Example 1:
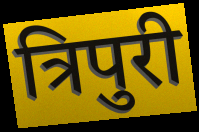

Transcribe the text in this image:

त्रिपुरी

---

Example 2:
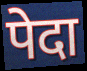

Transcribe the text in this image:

पेदा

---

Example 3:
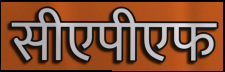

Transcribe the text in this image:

सीएपीएफ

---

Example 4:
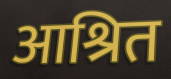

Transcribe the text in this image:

आश्रित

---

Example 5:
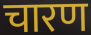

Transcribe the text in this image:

चारण